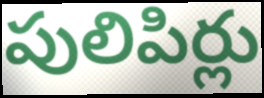
పులిపిర్లు